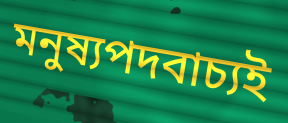
মনুষ্যপদবাচ্যই